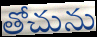
తోచును